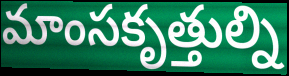
మాంసకృత్తుల్ని